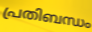
പ്രതിബന്ധം